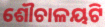
ଶୌଚାଳୟଟି